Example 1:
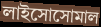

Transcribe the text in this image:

লাইসোসোমাল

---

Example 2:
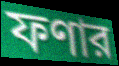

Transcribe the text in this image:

ফণার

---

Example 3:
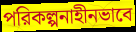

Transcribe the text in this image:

পরিকল্পনাহীনভাবে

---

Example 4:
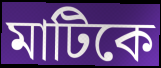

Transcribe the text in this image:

মাটিকে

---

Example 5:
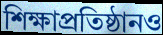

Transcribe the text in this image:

শিক্ষাপ্রতিষ্ঠানও